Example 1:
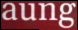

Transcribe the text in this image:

aung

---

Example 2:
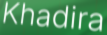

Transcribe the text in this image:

Khadira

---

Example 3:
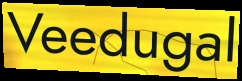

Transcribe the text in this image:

Veedugal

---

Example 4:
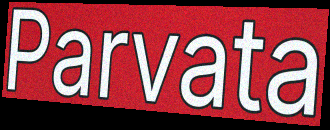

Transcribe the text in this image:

Parvata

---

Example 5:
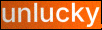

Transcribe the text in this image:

unlucky